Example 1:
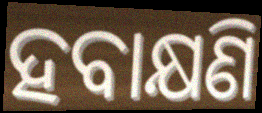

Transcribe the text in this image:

ହବାକ୍ଷଣି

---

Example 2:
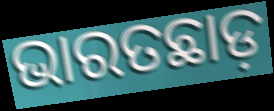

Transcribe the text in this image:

ଭାରତଛାଡ଼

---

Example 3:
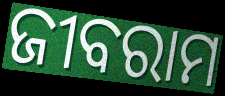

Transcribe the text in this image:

ଜୀବରାମ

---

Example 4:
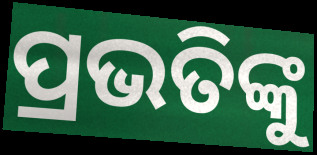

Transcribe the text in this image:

ପ୍ରଭତିଙ୍କୁ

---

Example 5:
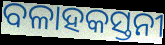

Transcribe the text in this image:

ବଳାହକସ୍ତନୀ